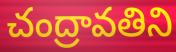
చంద్రావతిని